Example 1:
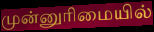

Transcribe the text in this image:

முன்னுரிமையில்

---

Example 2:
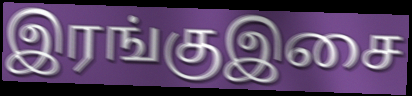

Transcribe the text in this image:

இரங்குஇசை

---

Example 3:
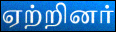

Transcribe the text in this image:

ஏற்றினர்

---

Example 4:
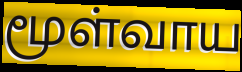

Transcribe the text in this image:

மூள்வாய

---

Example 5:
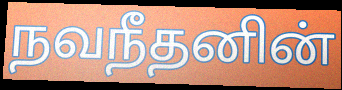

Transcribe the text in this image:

நவநீதனின்